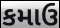
કમાઉ